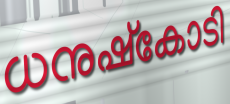
ധനുഷ്കോടി